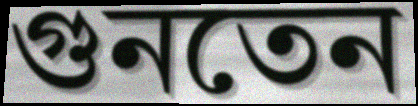
গুনতেন